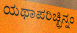
ಯಥಾಪರಿಚ್ಛಿನ್ನಂ